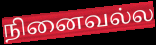
நினைவல்ல